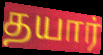
தயார்